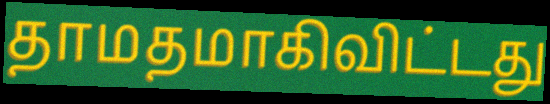
தாமதமாகிவிட்டது